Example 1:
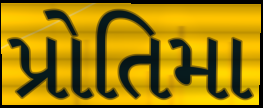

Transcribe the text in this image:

પ્રોતિમા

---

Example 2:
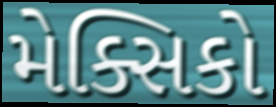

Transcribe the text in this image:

મેક્સિકો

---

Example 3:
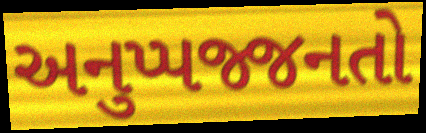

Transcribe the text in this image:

અનુપ્પજ્જનતો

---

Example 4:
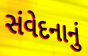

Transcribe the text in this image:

સંવેદનાનું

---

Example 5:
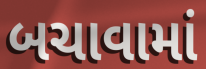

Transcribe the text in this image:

બચાવામાં